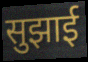
सुझाई